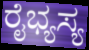
ರೈಭ್ಯಸ್ಯ